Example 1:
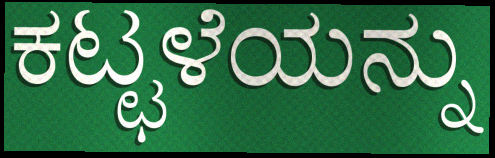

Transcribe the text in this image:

ಕಟ್ಟಳೆಯನ್ನು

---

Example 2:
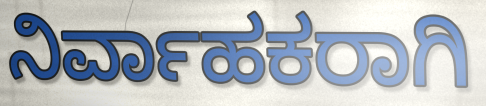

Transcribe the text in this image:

ನಿರ್ವಾಹಕರಾಗಿ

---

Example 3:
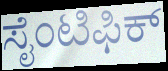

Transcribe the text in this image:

ಸೈಂಟಿಫಿಕ್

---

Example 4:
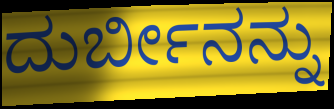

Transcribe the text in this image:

ದುರ್ಬೀನನ್ನು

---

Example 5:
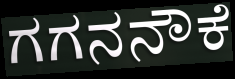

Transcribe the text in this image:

ಗಗನನೌಕೆ